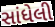
સાંધેલી